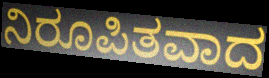
ನಿರೂಪಿತವಾದ